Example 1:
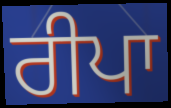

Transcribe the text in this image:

ਰੀਪਾ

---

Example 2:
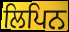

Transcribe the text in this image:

ਲਿਪਿਨ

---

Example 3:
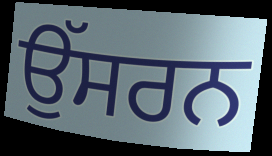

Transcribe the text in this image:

ਉੱਸਰਨ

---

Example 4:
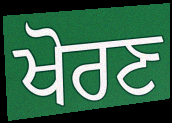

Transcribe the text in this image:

ਖੋਰਣ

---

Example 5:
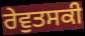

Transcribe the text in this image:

ਰੇਵੁਤਸਕੀ